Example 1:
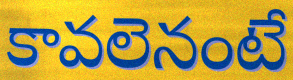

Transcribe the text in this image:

కావలెనంటే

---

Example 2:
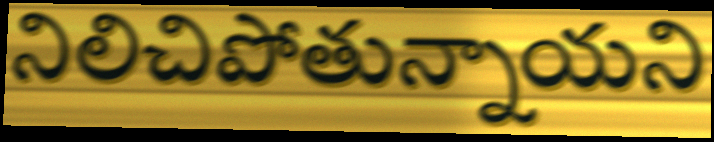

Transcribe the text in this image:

నిలిచిపోతున్నాయని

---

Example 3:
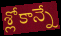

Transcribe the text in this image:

శ్లోకాన్నే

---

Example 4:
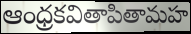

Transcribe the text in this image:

ఆంధ్రకవితాపితామహ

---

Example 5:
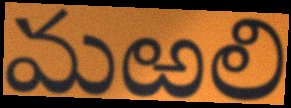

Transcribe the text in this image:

మఱలి